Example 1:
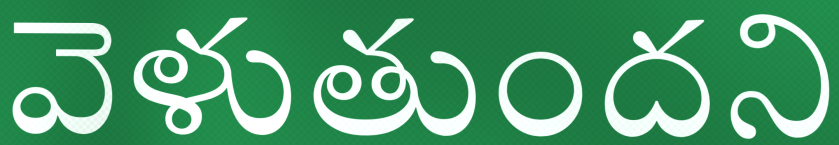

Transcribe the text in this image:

వెళుతుందని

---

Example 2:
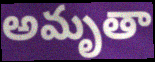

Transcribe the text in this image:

అమృతా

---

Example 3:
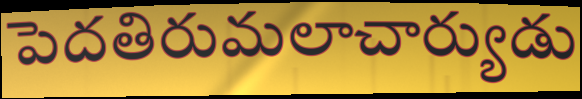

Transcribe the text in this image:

పెదతిరుమలాచార్యుడు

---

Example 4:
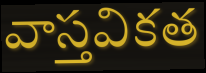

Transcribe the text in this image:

వాస్తవికత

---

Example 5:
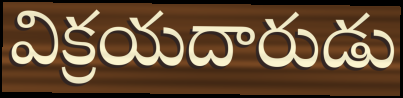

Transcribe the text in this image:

విక్రయదారుడు